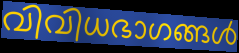
വിവിധഭാഗങ്ങൾ